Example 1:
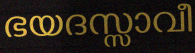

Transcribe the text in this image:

ഭയദസ്സാവീ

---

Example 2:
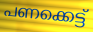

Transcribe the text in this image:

പണക്കെട്ട്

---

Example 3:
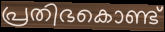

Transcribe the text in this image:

പ്രതിഭകൊണ്ട്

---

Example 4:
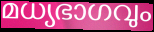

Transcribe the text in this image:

മധ്യഭാഗവും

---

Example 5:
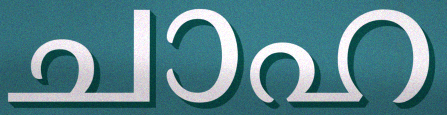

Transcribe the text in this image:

ചാഹ